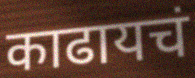
काढायचं